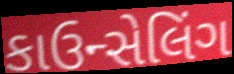
કાઉન્સેલિંગ